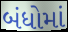
બંધોમાં